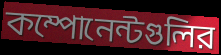
কম্পোনেন্টগুলির